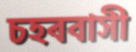
চহৰবাসী